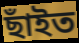
ছাঁইত